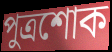
পুত্রশোক